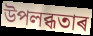
উপলব্ধতাৰ